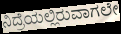
ನಿದ್ರೆಯಲ್ಲಿರುವಾಗಲೇ